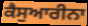
ਕੈਸੁਆਰੀਨਾ